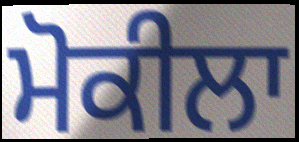
ਮੋਕੀਲਾ